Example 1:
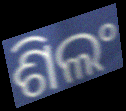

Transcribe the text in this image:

ଶିଲଂ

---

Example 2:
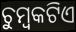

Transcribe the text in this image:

ଚୁମ୍ବକଟିଏ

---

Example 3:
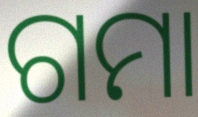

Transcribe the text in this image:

ଗମା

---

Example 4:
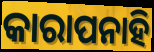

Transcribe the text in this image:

କାରାପନାହି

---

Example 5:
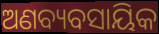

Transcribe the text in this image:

ଅଣବ୍ୟବସାୟିକ